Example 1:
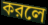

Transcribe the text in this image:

করলে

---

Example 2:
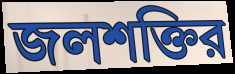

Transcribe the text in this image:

জলশক্তির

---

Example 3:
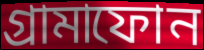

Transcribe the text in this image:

গ্রামাফোন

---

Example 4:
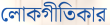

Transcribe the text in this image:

লোকগীতিকার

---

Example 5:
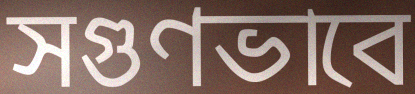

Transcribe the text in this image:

সগুণভাবে